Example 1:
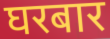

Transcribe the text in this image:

घरबार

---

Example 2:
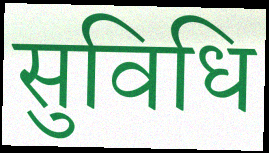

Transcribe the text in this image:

सुविधि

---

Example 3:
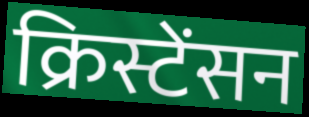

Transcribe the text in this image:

क्रिस्टेंसन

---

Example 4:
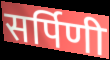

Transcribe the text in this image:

सर्पिणी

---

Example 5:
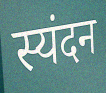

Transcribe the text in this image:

स्यंदन